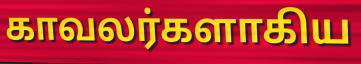
காவலர்களாகிய